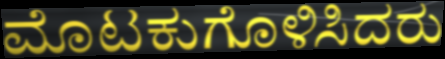
ಮೊಟಕುಗೊಳಿಸಿದರು